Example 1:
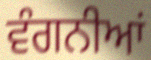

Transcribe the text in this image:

ਵੰਗਨੀਆਂ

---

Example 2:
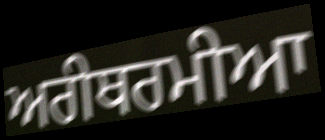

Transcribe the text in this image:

ਅਰੀਥਰਮੀਆ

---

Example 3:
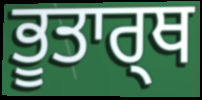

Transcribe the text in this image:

ਭੂਤਾਰ੍ਥ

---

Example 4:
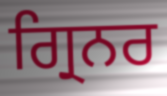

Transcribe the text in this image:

ਗ੍ਰਿਨਰ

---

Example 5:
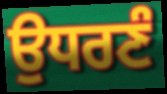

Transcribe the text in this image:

ਉਧਰਣੰ